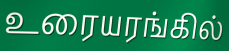
உரையரங்கில்